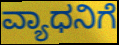
ವ್ಯಾಧನಿಗೆ